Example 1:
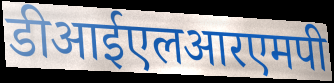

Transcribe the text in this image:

डीआईएलआरएमपी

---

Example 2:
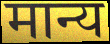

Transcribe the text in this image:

मान्य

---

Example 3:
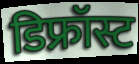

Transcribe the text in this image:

डिफ्रॉस्ट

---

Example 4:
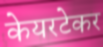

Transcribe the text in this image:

केयरटेकर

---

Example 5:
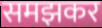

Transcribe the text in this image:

समझकर